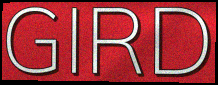
GIRD